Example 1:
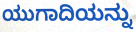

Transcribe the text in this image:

ಯುಗಾದಿಯನ್ನು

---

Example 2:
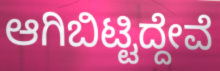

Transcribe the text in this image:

ಆಗಿಬಿಟ್ಟಿದ್ದೇವೆ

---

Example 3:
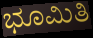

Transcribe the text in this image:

ಭೂಮಿತಿ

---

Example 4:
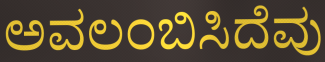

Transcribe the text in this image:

ಅವಲಂಬಿಸಿದೆವು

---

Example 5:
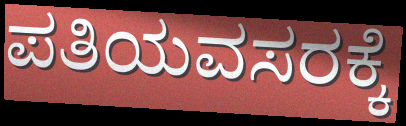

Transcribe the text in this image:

ಪತಿಯವಸರಕ್ಕೆ